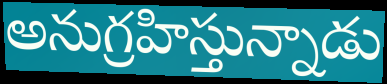
అనుగ్రహిస్తున్నాడు